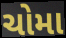
ચોમા